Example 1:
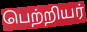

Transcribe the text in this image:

பெற்றியர்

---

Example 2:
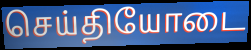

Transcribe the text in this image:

செய்தியோடை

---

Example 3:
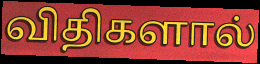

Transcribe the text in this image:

விதிகளால்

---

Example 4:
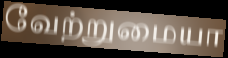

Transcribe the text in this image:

வேற்றுமையா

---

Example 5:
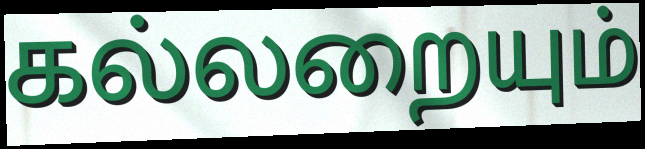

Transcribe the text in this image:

கல்லறையும்